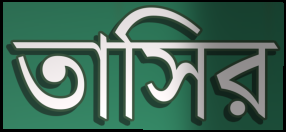
তাসির